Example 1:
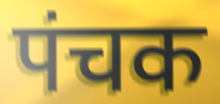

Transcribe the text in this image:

पंचक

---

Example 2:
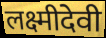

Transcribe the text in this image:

लक्ष्मीदेवी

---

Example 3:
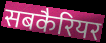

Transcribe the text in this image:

सबकैरियर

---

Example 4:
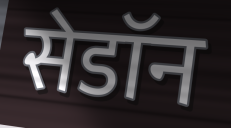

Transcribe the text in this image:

सेडॉन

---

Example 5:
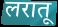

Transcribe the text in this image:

लरातू